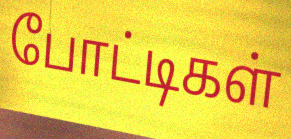
போட்டிகள்